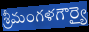
శ్రీమంగళగౌర్యై